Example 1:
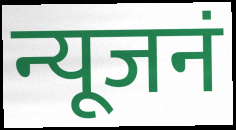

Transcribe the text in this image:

न्यूजनं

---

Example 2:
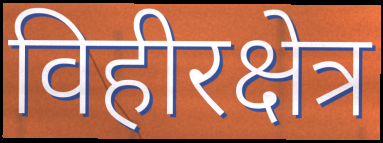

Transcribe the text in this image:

विहीरक्षेत्र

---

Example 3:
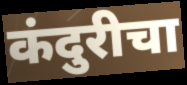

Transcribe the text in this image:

कंदुरीचा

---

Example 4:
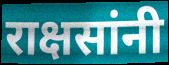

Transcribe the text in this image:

राक्षसांनी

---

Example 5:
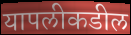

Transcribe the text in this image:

यापलीकडील